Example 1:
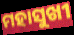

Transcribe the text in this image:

ମହାସୁଖୀ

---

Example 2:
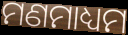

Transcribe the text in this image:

ମଣମାଧ୍ୟମ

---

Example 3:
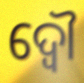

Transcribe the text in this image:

ଦ୍ଵୌ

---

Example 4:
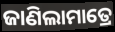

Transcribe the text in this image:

ଜାଣିଲାମାତ୍ରେ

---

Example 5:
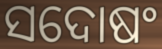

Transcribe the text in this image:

ସଦୋଷଂ